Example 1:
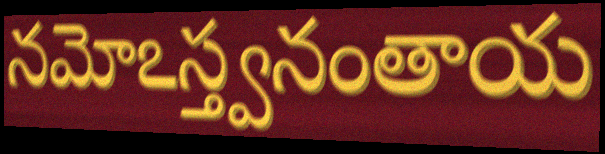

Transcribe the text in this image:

నమోఽస్త్వనంతాయ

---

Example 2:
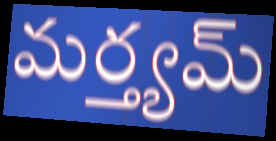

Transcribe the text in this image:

మర్త్యమ్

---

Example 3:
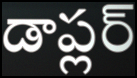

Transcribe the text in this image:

డాప్లర్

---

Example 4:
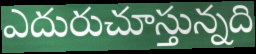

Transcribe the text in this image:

ఎదురుచూస్తున్నది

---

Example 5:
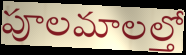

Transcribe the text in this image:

పూలమాలల్తో